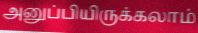
அனுப்பியிருக்கலாம்